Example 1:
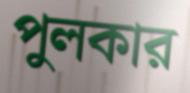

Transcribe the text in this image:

পুলকার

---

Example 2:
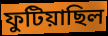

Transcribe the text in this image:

ফুটিয়াছিল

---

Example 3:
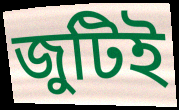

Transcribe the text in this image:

জুটিই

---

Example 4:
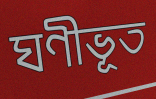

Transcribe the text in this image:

ঘণীভূত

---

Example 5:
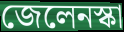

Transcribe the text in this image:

জেলেনস্কা